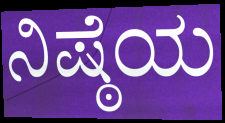
ನಿಷ್ಠೆಯ